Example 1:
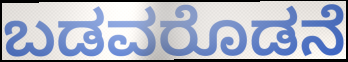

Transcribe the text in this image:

ಬಡವರೊಡನೆ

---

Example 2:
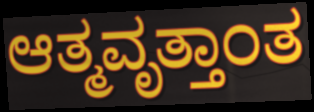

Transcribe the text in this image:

ಆತ್ಮವೃತ್ತಾಂತ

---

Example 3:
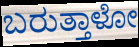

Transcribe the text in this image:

ಬರುತ್ತಾಳೋ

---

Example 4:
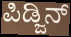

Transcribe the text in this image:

ಪಿಡ್ಜಿನ್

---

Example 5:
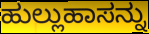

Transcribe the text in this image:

ಹುಲ್ಲುಹಾಸನ್ನು